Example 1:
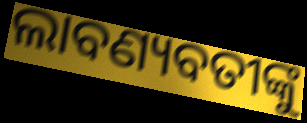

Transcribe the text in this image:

ଲାବଣ୍ୟବତୀଙ୍କୁ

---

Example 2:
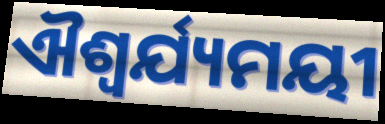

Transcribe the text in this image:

ଐଶ୍ୱର୍ଯ୍ୟମୟୀ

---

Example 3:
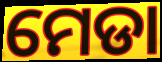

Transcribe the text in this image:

ମେଡା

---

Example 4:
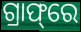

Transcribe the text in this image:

ଗ୍ରାଫ୍‌ରେ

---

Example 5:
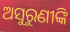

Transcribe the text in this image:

ଅସୁରୁଣୀଙ୍କି